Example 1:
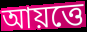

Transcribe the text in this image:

আয়ত্তে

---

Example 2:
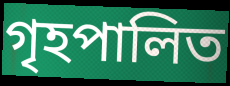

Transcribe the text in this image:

গৃহপালিত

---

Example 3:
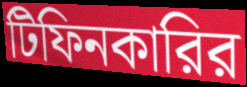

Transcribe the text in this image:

টিফিনকারির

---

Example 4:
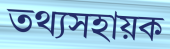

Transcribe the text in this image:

তথ্যসহায়ক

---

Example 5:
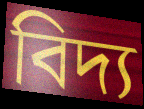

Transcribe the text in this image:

বিদ্য